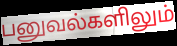
பனுவல்களிலும்